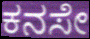
ಕನಸೇ